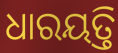
ଧାରୟତ୍ତି